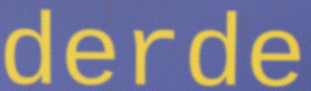
derde